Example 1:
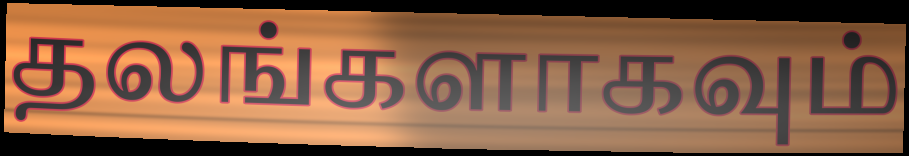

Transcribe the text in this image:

தலங்களாகவும்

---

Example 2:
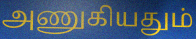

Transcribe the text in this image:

அணுகியதும்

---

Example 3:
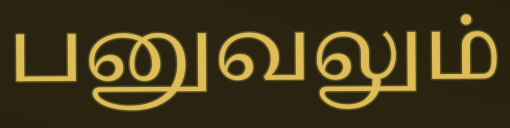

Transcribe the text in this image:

பனுவலும்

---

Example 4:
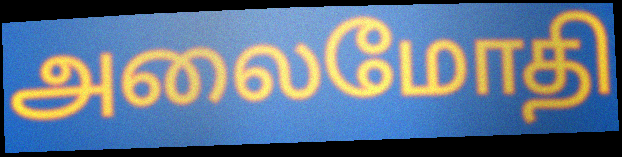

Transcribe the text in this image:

அலைமோதி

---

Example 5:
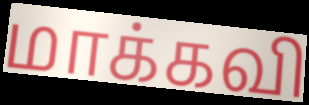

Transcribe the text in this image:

மாக்கவி